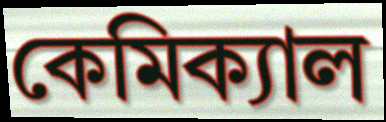
কেমিক্যাল